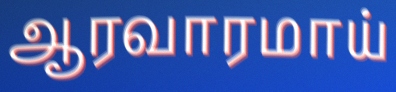
ஆரவாரமாய்